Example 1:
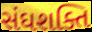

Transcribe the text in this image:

સંઘશક્તિ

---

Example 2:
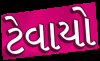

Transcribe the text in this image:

ટેવાયો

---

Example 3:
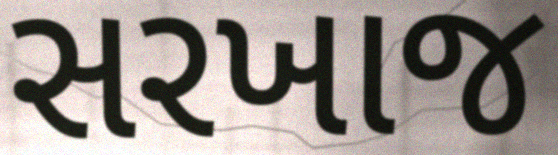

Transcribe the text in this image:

સરખાજ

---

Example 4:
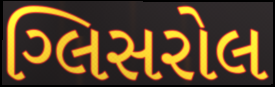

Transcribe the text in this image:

ગ્લિસરોલ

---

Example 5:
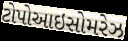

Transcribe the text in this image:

ટોપોઆઇસોમરેઝ